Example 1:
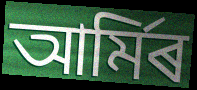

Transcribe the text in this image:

আৰ্মিৰ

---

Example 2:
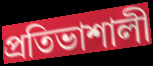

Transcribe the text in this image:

প্ৰতিভাশালী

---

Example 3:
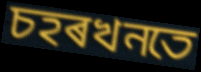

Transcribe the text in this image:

চহৰখনতে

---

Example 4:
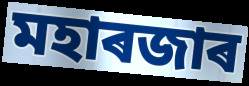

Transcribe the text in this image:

মহাৰজাৰ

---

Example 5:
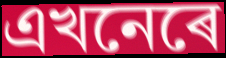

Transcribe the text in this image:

এখনেৰে